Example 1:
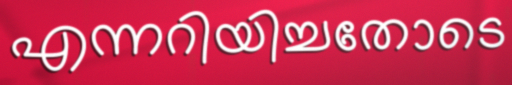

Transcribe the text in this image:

എന്നറിയിച്ചതോടെ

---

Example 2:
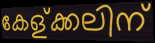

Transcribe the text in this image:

കേള്ക്കലിന്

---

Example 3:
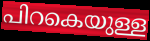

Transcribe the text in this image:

പിറകെയുള്ള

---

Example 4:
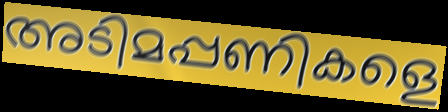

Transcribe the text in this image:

അടിമപ്പണികളെ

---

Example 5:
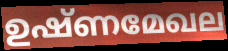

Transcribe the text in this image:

ഉഷ്ണമേഖല